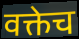
वक्तेच